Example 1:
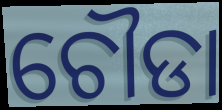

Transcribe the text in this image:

ଚୌଡା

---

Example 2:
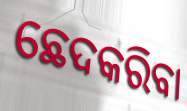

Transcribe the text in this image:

ଛେଦକରିବା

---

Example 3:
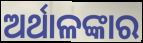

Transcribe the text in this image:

ଅର୍ଥାଳଙ୍କାର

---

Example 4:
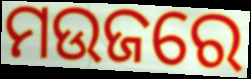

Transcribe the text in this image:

ମଉଜରେ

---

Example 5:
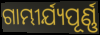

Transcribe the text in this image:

ଗାମ୍ଭୀର୍ଯ୍ୟପୂର୍ଣ୍ଣ